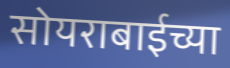
सोयराबाईच्या